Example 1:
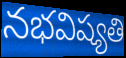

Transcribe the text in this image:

నభవిష్యతి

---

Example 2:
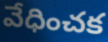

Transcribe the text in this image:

వేధించక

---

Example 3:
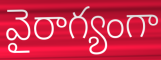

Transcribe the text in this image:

వైరాగ్యంగా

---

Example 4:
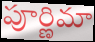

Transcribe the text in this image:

పూర్ణిమా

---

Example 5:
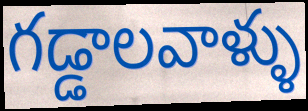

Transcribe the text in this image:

గడ్డాలవాళ్ళు